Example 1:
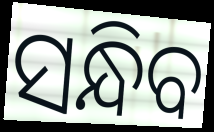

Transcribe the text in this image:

ସନ୍ଧିବ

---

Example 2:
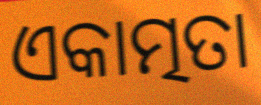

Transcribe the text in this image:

ଏକାତ୍ମତା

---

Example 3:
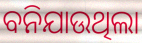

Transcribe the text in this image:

ବନିଯାଉଥିଲା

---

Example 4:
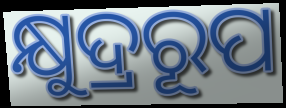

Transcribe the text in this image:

କ୍ଷୁଦ୍ରରୂପ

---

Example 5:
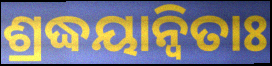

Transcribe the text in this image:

ଶ୍ରଦ୍ଧୟାନ୍ୱିତାଃ